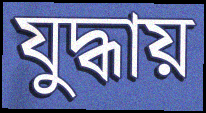
যুদ্ধায়